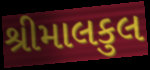
શ્રીમાલકુલ